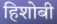
हिशोबी